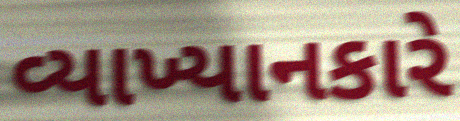
વ્યાખ્યાનકારે